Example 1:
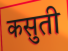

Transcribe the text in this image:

कसुती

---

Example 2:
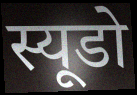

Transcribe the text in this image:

स्यूडो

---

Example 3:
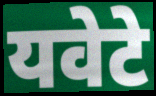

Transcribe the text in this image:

यवेटे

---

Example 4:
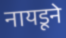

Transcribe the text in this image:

नायडूने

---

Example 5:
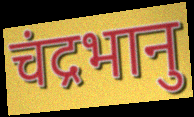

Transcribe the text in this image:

चंद्रभानु